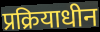
प्रक्रियाधीन